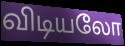
விடியலோ